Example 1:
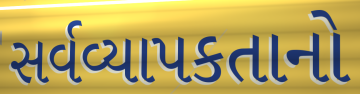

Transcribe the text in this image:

સર્વવ્યાપકતાનો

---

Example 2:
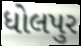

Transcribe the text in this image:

ધોલપુર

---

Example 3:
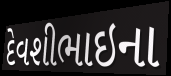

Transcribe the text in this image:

દેવશીભાઇના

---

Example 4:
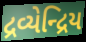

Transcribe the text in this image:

દ્રવ્યેન્દ્રિય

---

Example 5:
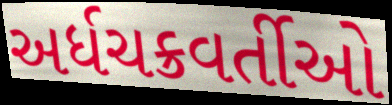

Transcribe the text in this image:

અર્ધચક્રવર્તીઓ